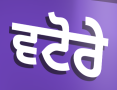
ਵਟੋਰੇ